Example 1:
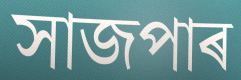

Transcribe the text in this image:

সাজপাৰ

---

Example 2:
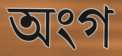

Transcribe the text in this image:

অংগ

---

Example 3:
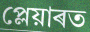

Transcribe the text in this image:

প্লেয়াৰত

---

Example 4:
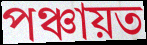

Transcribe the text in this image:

পঞ্চায়ত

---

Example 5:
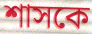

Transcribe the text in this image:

শাসকে